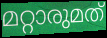
മറ്റാരുമത്